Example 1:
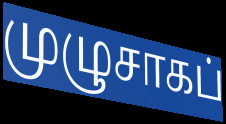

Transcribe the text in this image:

முழுசாகப்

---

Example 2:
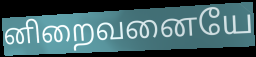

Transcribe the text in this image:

னிறைவனையே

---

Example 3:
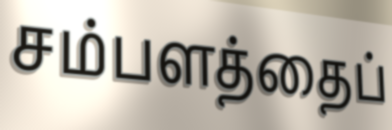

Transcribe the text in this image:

சம்பளத்தைப்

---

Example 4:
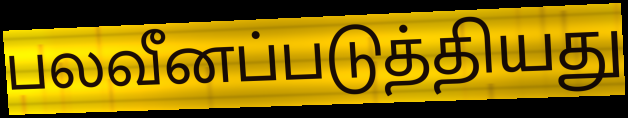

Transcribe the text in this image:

பலவீனப்படுத்தியது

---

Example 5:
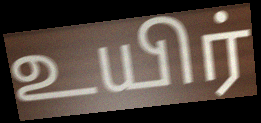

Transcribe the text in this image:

உயிர்